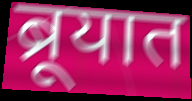
ब्रूयात